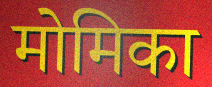
मोमिका